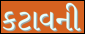
કટાવની